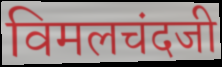
विमलचंदजी